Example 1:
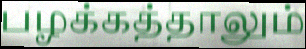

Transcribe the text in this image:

பழக்கத்தாலும்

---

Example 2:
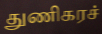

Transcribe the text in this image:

துணிகரச்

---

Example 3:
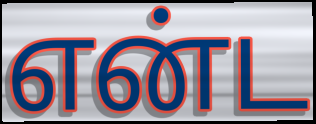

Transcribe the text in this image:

என்ட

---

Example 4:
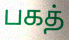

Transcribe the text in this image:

பகத்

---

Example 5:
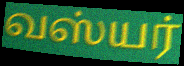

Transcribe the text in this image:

வஸ்யர்